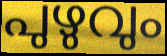
പുഴുവും